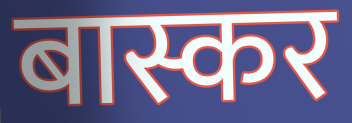
बास्कर